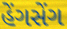
હેંગસેંગ